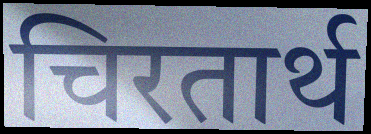
चिरतार्थ